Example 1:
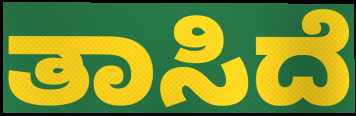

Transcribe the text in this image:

ತಾಸಿದೆ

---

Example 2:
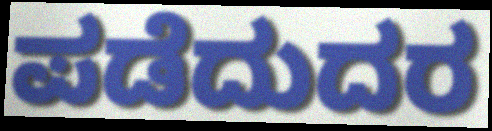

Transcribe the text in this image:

ಪಡೆದುದರ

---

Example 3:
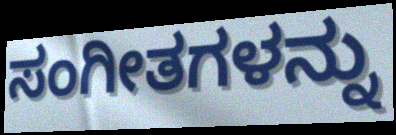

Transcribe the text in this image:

ಸಂಗೀತಗಳನ್ನು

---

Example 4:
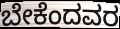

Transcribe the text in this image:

ಬೇಕೆಂದವರ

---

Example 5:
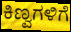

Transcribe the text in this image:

ಕಿಣ್ವಗಳಿಗೆ